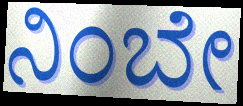
ನಿಂಬೇ